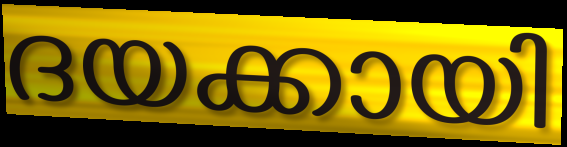
ദയക്കായി